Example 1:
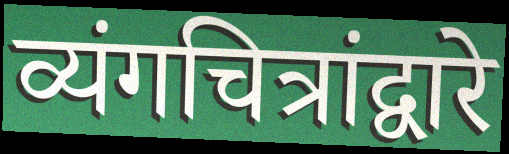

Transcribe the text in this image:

व्यंगचित्रांद्वारे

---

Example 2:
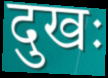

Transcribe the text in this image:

दुखः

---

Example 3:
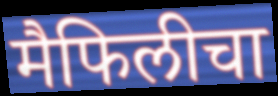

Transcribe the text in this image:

मैफिलीचा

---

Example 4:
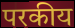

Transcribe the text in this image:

परकीय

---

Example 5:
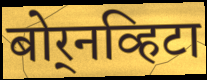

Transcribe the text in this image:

बोर्नव्हिटा